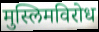
मुस्लिमविरोध